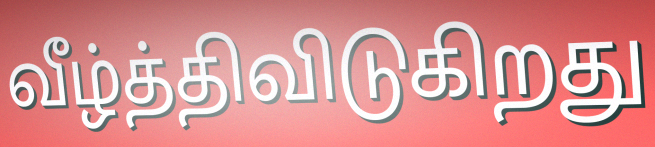
வீழ்த்திவிடுகிறது